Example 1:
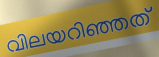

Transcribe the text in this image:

വിലയറിഞ്ഞത്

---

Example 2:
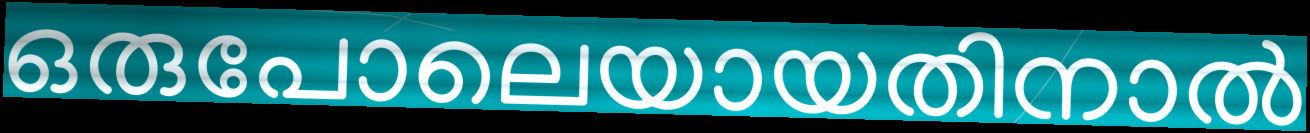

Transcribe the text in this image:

ഒരുപോലെയായതിനാൽ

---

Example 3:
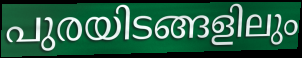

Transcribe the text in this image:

പുരയിടങ്ങളിലും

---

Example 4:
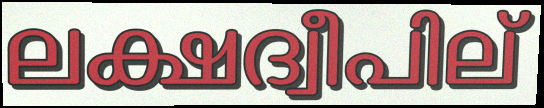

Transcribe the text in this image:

ലക്ഷദ്വീപില്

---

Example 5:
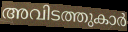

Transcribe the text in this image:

അവിടത്തുകാർ